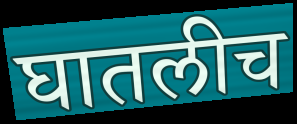
घातलीच